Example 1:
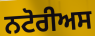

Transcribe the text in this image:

ਨਟੋਰੀਅਸ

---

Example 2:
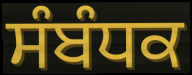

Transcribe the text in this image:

ਸੰਬੰਧਕ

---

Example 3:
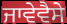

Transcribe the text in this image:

ਜਾਵੇਵੈਸੇ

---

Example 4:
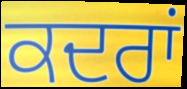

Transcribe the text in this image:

ਕਦਰਾਂ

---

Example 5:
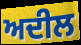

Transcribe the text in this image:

ਅਦੀਲ